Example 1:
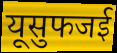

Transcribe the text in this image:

यूसुफजई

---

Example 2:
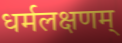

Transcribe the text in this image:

धर्मलक्षणम्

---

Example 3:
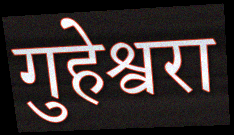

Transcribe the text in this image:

गुहेश्वरा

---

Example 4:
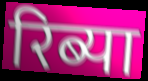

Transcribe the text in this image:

रिब्या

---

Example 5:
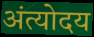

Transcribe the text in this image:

अंत्योदय